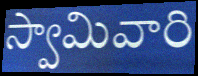
స్వామివారి